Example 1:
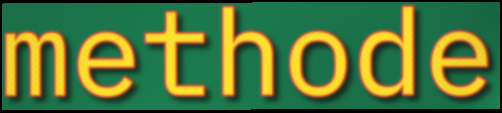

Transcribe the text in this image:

methode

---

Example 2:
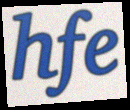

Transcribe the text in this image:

hfe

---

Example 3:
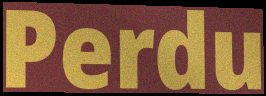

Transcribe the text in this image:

Perdu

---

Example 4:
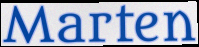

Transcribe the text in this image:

Marten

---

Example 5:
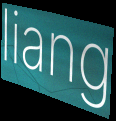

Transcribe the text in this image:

liang